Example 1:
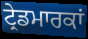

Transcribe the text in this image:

ਟ੍ਰੇਡਮਾਰਕਾਂ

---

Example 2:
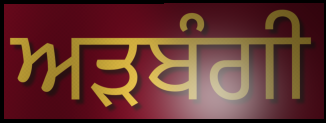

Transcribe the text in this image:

ਅੜਬੰਗੀ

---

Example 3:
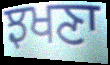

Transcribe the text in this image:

ਝਖਣਾ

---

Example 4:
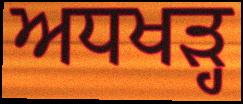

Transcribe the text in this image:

ਅਧਖੜ੍ਹ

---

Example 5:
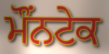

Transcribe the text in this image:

ਮੌਂਨਟੇਕ